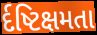
ર્દષ્ટિક્ષમતા